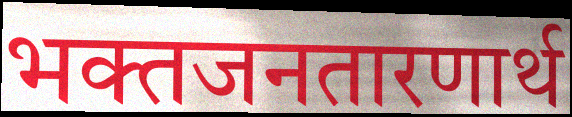
भक्तजनतारणार्थ